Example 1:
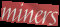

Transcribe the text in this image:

miners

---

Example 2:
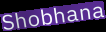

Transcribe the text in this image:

Shobhana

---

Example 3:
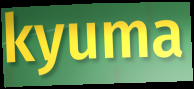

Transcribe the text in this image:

kyuma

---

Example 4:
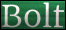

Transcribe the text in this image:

Bolt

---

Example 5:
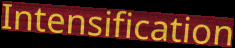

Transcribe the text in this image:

Intensification